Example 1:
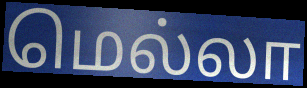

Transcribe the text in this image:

மெல்லா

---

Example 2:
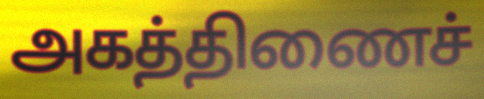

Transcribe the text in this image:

அகத்திணைச்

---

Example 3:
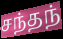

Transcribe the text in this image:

சந்தந்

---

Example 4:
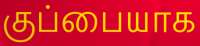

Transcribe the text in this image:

குப்பையாக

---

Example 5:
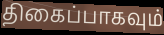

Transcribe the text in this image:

திகைப்பாகவும்